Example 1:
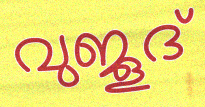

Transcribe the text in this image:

വുജൂദ്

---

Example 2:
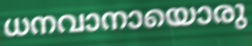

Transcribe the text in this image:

ധനവാനായൊരു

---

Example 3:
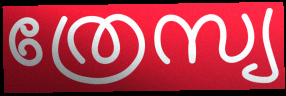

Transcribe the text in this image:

ത്രേസ്യ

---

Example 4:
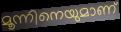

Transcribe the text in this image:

മൂന്നിനെയുമാണ്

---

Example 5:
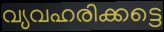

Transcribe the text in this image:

വ്യവഹരിക്കട്ടെ